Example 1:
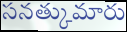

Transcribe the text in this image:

సనత్కుమారు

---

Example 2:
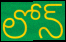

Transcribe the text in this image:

లోన్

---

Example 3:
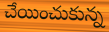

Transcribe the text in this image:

చేయించుకున్న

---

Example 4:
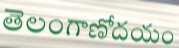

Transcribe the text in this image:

తెలంగాణోదయం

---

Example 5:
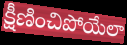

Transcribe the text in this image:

క్షీణించిపోయేలా